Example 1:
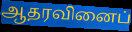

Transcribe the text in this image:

ஆதரவினைப்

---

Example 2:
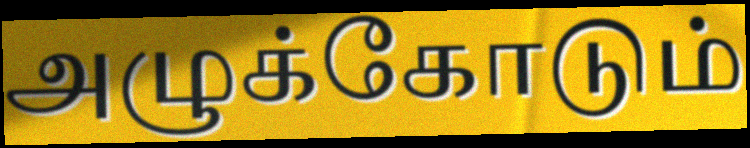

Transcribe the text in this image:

அழுக்கோடும்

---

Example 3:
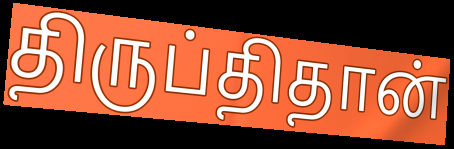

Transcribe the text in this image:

திருப்திதான்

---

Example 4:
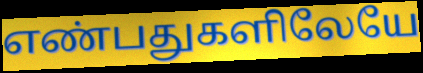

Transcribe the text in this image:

எண்பதுகளிலேயே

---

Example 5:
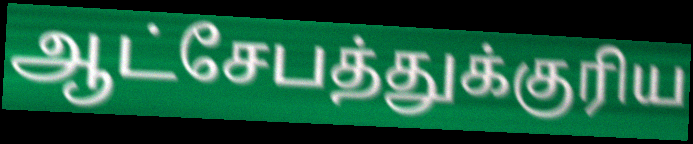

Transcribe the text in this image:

ஆட்சேபத்துக்குரிய